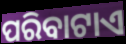
ପରିବାଟାଏ